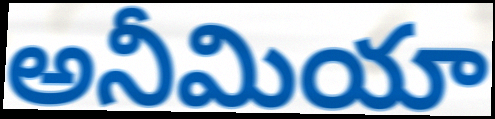
అనీమియా